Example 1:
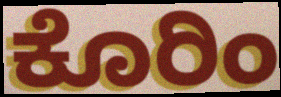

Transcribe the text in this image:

ಕೊರಿಂ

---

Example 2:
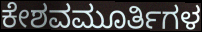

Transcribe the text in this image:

ಕೇಶವಮೂರ್ತಿಗಳ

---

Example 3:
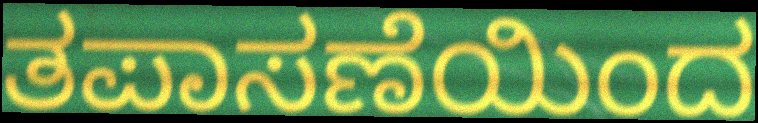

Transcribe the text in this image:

ತಪಾಸಣೆಯಿಂದ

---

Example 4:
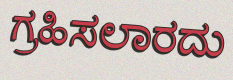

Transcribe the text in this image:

ಗ್ರಹಿಸಲಾರದು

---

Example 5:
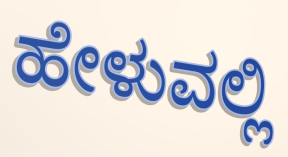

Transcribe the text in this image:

ಹೇಳುವಲ್ಲಿ